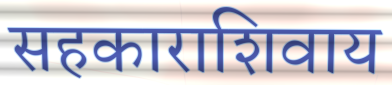
सहकाराशिवाय